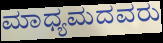
ಮಾಧ್ಯಮದವರು